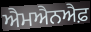
ਐਮਐਨਐਫ਼